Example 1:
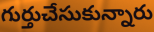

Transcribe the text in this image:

గుర్తుచేసుకున్నారు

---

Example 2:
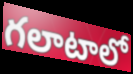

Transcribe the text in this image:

గలాటాలో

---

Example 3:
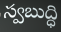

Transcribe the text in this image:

స్వబుద్ధి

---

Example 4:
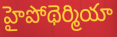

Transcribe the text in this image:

హైపోథెర్మియా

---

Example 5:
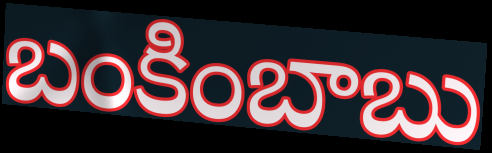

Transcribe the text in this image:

బంకింబాబు